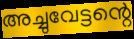
അച്ചുവേട്ടന്റെ